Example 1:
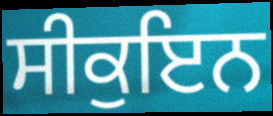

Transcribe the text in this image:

ਸੀਕੁਇਨ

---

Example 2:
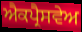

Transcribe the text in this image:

ਐਕਪ੍ਰੈਸਵੇਅ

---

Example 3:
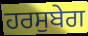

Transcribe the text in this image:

ਹਰਸੁਬੇਗ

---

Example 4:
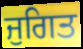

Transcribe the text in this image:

ਜੁਗਿਤ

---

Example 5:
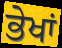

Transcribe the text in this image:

ਭੇਖਾਂ